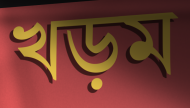
খড়ম